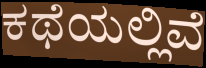
ಕಥೆಯಲ್ಲಿವೆ